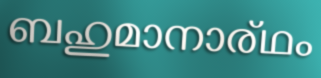
ബഹുമാനാര്ഥം